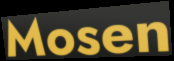
Mosen